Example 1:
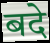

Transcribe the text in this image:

बदे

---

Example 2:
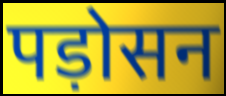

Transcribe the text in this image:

पड़ोसन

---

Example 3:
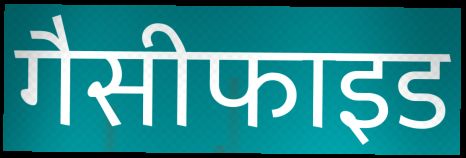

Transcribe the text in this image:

गैसीफाइड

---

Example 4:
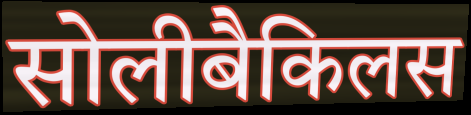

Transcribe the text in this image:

सोलीबैकिलस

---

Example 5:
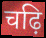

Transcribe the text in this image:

चढ़ि